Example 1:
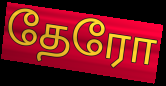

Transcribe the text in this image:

தேரோ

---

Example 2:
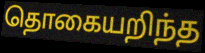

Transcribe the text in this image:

தொகையறிந்த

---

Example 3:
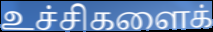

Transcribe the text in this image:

உச்சிகளைக்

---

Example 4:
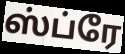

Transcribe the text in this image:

ஸ்ப்ரே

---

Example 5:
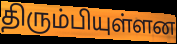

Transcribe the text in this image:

திரும்பியுள்ளன